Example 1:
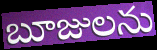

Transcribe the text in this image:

బూజులను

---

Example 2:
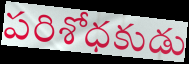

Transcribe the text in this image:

పరిశోధకుడు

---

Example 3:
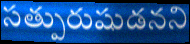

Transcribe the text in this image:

సత్పురుషుడనని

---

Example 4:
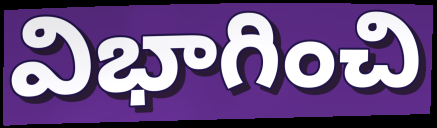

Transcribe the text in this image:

విభాగించి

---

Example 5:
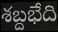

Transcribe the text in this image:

శబ్దభేది